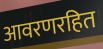
आवरणरहित